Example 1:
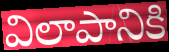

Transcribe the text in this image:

విలాపానికి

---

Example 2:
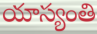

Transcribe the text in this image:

యాస్యంతి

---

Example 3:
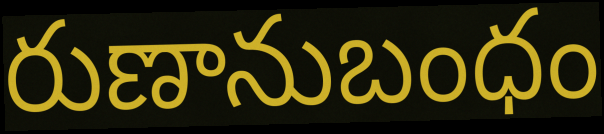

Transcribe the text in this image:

రుణానుబంధం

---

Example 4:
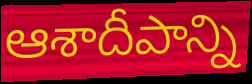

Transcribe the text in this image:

ఆశాదీపాన్ని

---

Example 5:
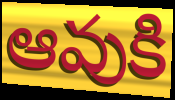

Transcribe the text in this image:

ఆవుకి